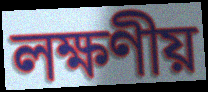
লক্ষণীয়